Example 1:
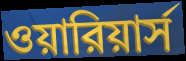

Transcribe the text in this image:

ওয়ারিয়ার্স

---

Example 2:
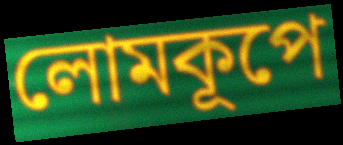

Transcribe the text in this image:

লোমকূপে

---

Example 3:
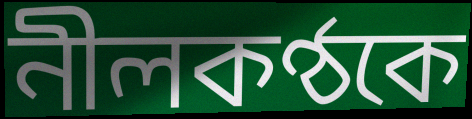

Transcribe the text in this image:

নীলকণ্ঠকে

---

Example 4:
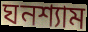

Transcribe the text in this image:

ঘনশ্যাম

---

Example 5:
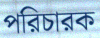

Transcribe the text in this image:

পরিচারক